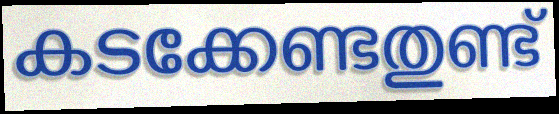
കടക്കേണ്ടതുണ്ട്